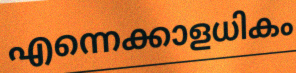
എന്നെക്കാളധികം